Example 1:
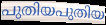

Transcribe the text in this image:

പുതിയപുതിയ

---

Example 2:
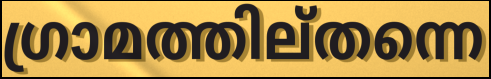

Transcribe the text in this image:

ഗ്രാമത്തില്തന്നെ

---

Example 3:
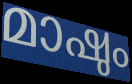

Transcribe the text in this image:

മാഷും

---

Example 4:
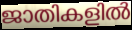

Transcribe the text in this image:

ജാതികളിൽ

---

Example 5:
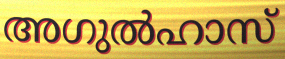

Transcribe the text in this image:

അഗുൽഹാസ്